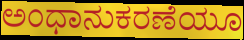
ಅಂಧಾನುಕರಣೆಯೂ